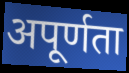
अपूर्णता